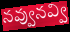
నవ్వునవ్వి